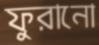
ফুরানো